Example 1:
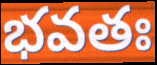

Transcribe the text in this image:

భవతః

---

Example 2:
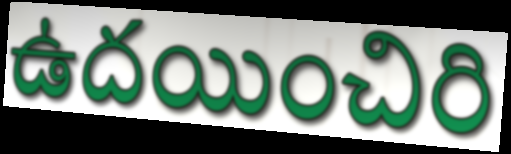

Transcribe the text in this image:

ఉదయించిరి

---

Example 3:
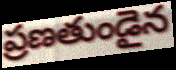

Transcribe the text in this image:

ప్రణతుండైన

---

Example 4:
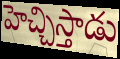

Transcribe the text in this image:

హెచ్చిస్తాడు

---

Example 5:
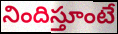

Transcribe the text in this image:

నిందిస్తూంటే